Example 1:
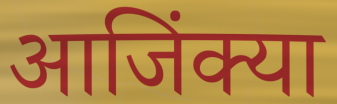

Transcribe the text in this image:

आजिंक्या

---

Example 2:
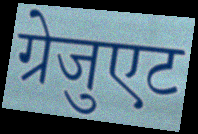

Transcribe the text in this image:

ग्रेजुएट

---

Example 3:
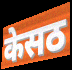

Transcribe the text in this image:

केसठ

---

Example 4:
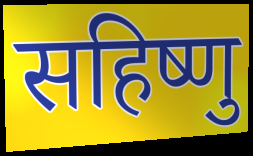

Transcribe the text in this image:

सहिष्णु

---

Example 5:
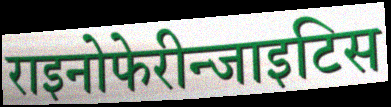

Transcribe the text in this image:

राइनोफेरीन्जाइटिस